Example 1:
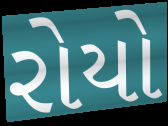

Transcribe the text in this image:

રોયો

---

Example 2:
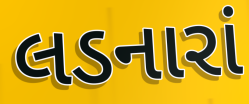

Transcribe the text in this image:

લડનારાં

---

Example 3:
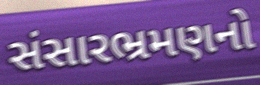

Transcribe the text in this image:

સંસારભ્રમણનો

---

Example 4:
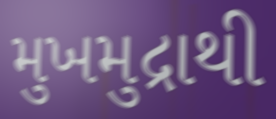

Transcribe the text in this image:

મુખમુદ્રાથી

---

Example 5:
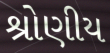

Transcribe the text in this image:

શ્રોણીય